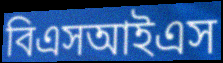
বিএসআইএস